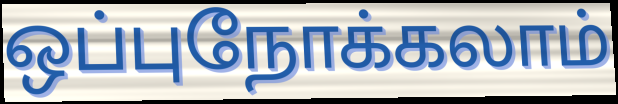
ஒப்புநோக்கலாம்